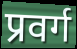
प्रवर्ग